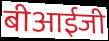
बीआईजी